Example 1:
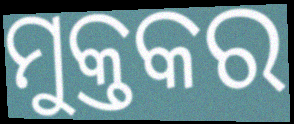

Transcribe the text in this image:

ମୁକ୍ତକର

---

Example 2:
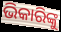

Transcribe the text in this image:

ଭିକାରିଙ୍କୁ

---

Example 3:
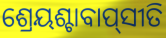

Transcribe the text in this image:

ଶ୍ରେୟଶ୍ଚାବାପ୍‌ସୀତି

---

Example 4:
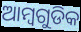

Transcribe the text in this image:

ଆମ୍ବଗୁଡିକ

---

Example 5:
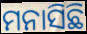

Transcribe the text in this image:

ମନାସିଛି